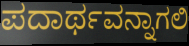
ಪದಾರ್ಥವನ್ನಾಗಲಿ